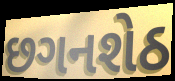
છગનશેઠ